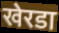
खेरडा